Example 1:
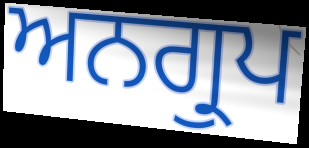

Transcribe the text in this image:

ਅਨਗ੍ਰੁਪ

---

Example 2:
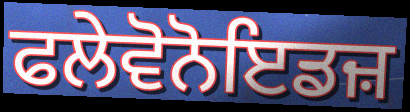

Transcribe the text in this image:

ਫਲੇਵੋਨੋਇਡਜ਼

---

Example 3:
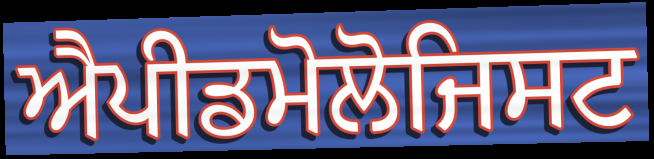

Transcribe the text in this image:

ਐਪੀਡਮੋਲੋਜਿਸਟ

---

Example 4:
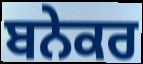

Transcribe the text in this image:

ਬਨੇਕਰ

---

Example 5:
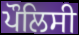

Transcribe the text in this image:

ਪੌਲਿਸੀ